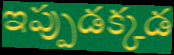
ఇప్పుడక్కడ